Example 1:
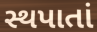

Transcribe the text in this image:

સ્થપાતાં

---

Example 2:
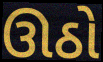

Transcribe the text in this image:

ઊઠો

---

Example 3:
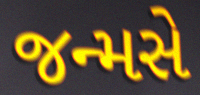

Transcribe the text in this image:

જન્મસે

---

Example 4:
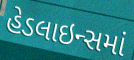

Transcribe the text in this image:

હેડલાઇન્સમાં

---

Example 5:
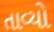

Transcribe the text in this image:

તાવ્યો